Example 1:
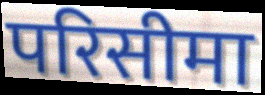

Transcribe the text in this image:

परिसीमा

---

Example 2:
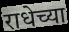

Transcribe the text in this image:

राधेच्या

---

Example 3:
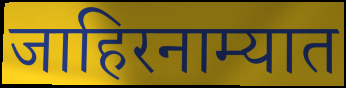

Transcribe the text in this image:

जाहिरनाम्यात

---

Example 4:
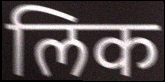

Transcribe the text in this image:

लिक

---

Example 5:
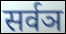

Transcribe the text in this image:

सर्वञ